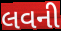
લવની